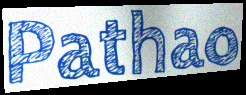
Pathao